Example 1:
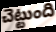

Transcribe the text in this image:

చెట్టుంది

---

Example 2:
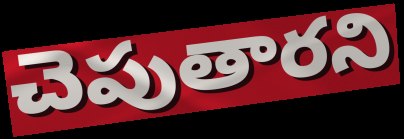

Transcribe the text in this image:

చెపుతారని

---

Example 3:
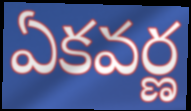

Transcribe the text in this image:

ఏకవర్ణ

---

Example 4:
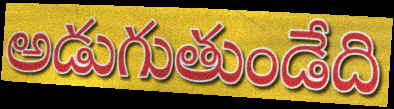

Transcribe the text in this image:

అడుగుతుండేది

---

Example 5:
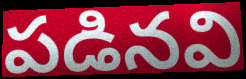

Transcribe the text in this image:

పడినవి